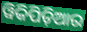
ୱିକିପିଡ଼ିଆର